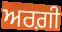
ਅਰਗ਼ੀ